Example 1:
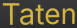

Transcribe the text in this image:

Taten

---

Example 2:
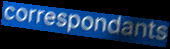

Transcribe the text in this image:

correspondants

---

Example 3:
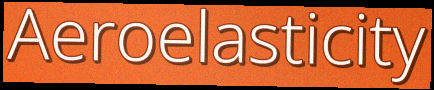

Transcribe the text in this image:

Aeroelasticity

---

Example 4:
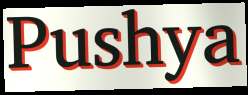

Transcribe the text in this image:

Pushya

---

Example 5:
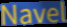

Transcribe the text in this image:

Navel